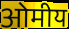
ओमीय